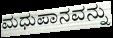
ಮಧುಪಾನವನ್ನು